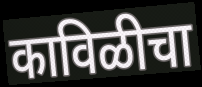
काविळीचा